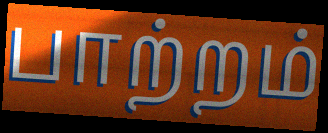
பாற்றம்